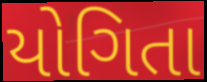
યોગિતા